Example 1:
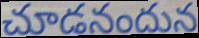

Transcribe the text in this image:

చూడనందున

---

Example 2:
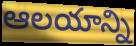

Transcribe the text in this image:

ఆలయాన్ని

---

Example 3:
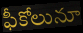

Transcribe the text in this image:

ఫీకోలునూ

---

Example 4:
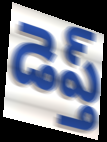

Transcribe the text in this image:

డెప్త్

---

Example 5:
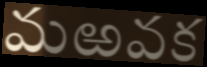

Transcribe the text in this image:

మఱవక